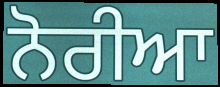
ਨੋਰੀਆ